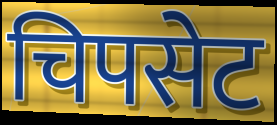
चिपसेट